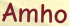
Amho